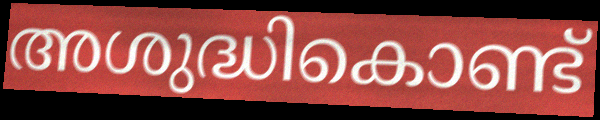
അശുദ്ധികൊണ്ട്